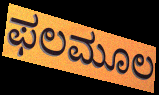
ಫಲಮೂಲ